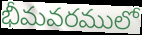
భీమవరములో